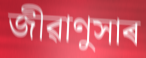
জীৱাণুসাৰ